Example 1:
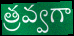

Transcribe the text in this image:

త్రవ్వగా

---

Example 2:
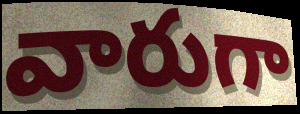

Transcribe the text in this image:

వారుగా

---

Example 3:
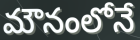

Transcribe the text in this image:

మౌనంలోనే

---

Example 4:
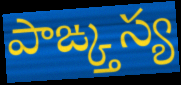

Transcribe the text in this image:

పాఙ్క్తస్య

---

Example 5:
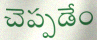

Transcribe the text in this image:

చెప్పడేం